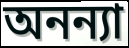
অনন্যা